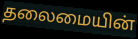
தலைமையின்